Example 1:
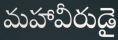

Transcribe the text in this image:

మహావీరుడై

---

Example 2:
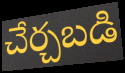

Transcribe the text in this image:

చేర్చబడి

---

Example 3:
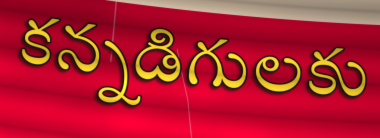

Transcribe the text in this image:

కన్నడిగులకు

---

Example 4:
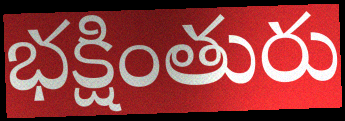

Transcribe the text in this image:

భక్షింతురు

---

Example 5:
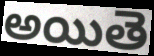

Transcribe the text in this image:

అయితె